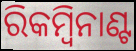
ରିକମ୍ବିନାଣ୍ଟ